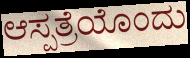
ಆಸ್ಪತ್ರೆಯೊಂದು